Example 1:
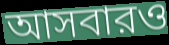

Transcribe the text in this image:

আসবারও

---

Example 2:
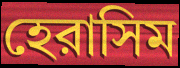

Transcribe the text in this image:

হেরাসিম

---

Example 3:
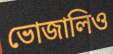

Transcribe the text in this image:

ভোজালিও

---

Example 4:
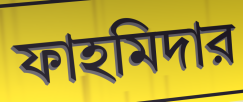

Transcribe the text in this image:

ফাহমিদার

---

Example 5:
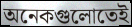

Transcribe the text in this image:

অনেকগুলোতেই